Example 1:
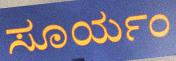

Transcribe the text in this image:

ಸೂರ್ಯಂ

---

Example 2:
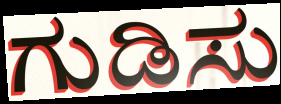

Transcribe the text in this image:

ಗುಡಿಸು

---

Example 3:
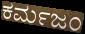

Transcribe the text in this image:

ಕರ್ಮಜಂ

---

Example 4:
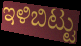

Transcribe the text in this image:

ಇಳಿಬಿಟ್ಟು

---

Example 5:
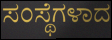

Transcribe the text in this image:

ಸಂಸ್ಥೆಗಳಾದ